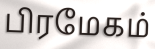
பிரமேகம்